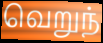
வெறுந்